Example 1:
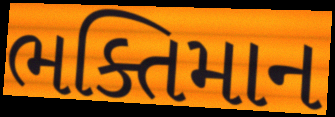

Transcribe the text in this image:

ભક્તિમાન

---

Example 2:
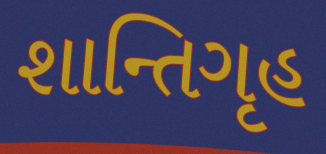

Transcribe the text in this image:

શાન્તિગૃહ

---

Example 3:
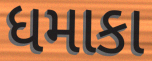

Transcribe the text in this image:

ધમાકા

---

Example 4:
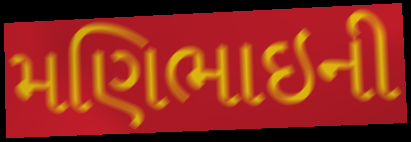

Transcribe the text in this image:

મણિભાઇની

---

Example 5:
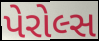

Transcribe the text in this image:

પેરોલ્સ